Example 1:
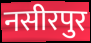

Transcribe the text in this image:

नसीरपुर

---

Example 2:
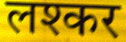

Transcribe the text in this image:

लश्‍कर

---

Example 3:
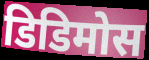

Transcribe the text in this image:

डिडिमोस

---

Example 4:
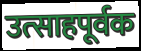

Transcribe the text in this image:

उत्‍साहपूर्वक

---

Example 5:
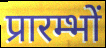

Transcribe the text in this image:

प्रारम्भों